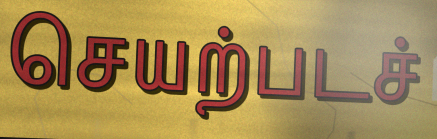
செயற்படச்